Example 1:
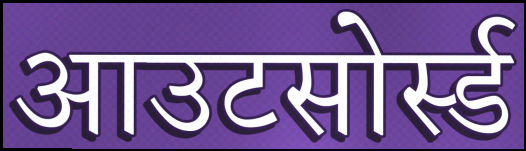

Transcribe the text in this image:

आउटसोर्स्ड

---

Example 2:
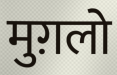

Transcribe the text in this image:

मुग़लो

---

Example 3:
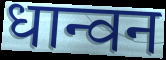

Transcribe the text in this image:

धान्वन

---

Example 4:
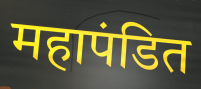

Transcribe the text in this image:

महापंडित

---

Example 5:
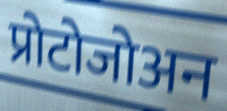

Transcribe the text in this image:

प्रोटोजोअन